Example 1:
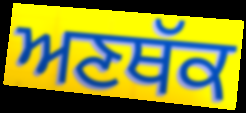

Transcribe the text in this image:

ਅਣਥੱਕ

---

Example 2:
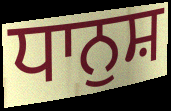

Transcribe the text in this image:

ਧਾਨੁਸ਼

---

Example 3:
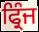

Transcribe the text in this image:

ਫ੍ਰਿੰਜ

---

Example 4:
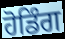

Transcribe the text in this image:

ਹੋਡਿੰਗ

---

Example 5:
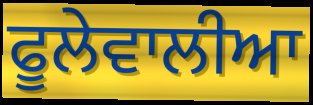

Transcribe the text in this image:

ਫੂਲੇਵਾਲੀਆ